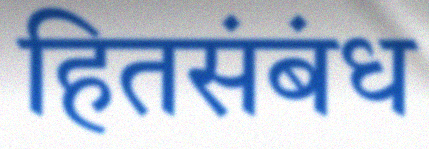
हितसंबंध